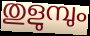
തുളുമ്പും